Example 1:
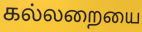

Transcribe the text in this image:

கல்லறையை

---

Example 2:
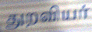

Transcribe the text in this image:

துறவியர்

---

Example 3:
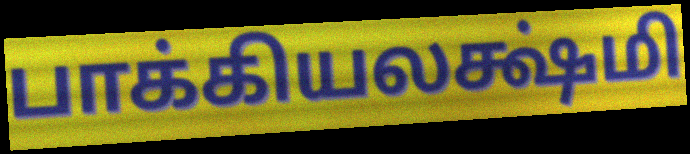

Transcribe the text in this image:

பாக்கியலக்ஷ்மி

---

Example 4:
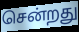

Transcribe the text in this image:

சென்றது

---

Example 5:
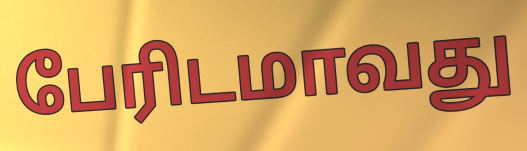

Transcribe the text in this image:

பேரிடமாவது